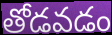
తోడవడం